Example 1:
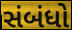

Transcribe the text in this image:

સંબંધો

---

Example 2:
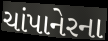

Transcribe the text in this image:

ચાંપાનેરના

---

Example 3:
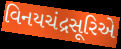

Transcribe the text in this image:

વિનયચંદ્રસૂરિએ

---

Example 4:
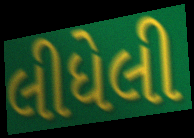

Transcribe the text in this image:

લીધેલી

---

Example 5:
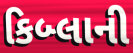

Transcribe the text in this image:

કિબ્લાની